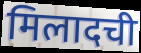
मिलादची